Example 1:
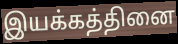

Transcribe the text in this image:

இயக்கத்தினை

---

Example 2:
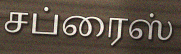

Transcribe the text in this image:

சப்ரைஸ்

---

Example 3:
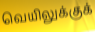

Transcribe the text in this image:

வெயிலுக்குக்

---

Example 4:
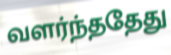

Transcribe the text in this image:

வளர்ந்ததேது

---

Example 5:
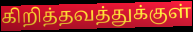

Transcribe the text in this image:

கிறித்தவத்துக்குள்